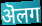
ऄलग